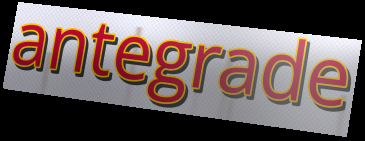
antegrade